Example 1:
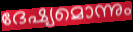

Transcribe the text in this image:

ദേഷ്യമൊന്നും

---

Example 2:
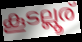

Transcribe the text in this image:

കൂടല്ലൂര്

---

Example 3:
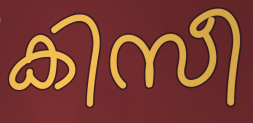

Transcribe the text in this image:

കിസീ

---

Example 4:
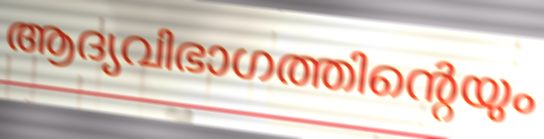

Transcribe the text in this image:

ആദ്യവിഭാഗത്തിന്റെയും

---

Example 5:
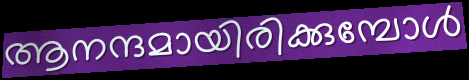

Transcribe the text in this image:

ആനന്ദമായിരിക്കുമ്പോൾ